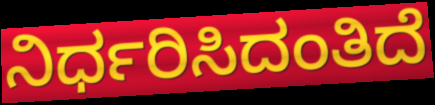
ನಿರ್ಧರಿಸಿದಂತಿದೆ